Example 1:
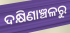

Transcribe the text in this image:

ଦକ୍ଷିଣାଞ୍ଚଳରୁ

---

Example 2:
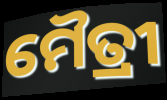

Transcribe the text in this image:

ମୈତ୍ରୀ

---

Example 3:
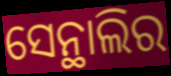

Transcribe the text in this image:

ସେନ୍ଥାଲିର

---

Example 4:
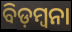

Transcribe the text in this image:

ବିଡ଼ମ୍ୱନା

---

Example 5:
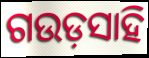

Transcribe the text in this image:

ଗଉଡ଼ସାହି